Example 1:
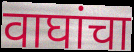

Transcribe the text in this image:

वाघांचा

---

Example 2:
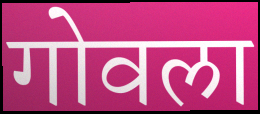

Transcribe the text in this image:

गोवला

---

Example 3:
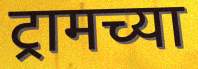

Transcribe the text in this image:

ट्रामच्या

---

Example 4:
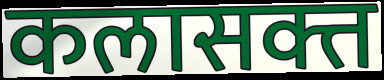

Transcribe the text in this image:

कलासक्त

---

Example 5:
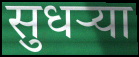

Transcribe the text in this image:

सुधर्‍या